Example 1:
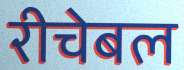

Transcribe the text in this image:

रीचेबल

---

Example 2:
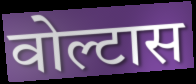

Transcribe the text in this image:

वोल्टास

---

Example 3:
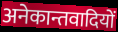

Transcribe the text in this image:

अनेकान्तवादियों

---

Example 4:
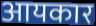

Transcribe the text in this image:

आयकार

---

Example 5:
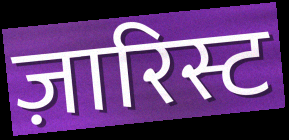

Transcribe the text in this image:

ज़ारिस्ट